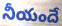
నీయందే